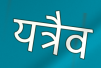
यत्रैव